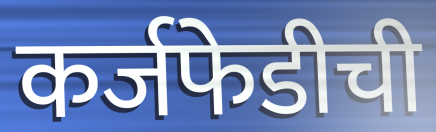
कर्जफेडीची